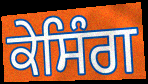
ਕੇਸਿੰਗ